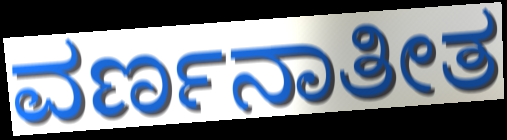
ವರ್ಣನಾತೀತ